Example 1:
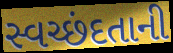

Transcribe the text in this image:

સ્વચ્છંદતાની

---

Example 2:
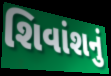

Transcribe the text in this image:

શિવાંશનું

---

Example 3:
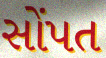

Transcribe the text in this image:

સોંપત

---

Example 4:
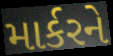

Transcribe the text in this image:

માર્કરને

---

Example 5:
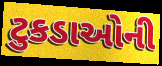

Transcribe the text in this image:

ટુકડાઓની